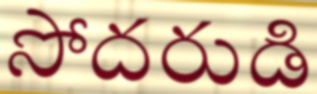
సోదరుడి